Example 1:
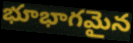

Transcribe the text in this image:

భూభాగమైన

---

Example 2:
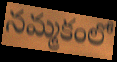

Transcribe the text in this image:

నమ్మకంలో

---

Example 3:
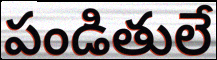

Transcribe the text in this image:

పండితులే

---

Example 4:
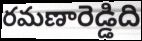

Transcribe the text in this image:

రమణారెడ్డిది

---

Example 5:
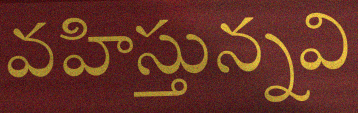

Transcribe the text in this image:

వహిస్తున్నవి